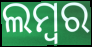
ଲମ୍ବର